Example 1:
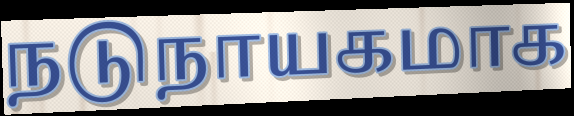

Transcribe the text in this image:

நடுநாயகமாக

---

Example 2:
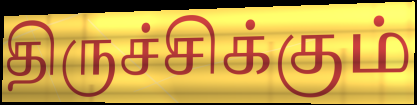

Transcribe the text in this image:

திருச்சிக்கும்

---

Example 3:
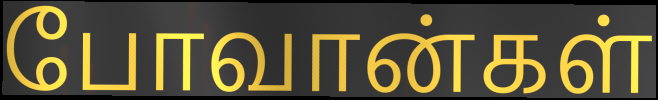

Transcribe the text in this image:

போவான்கள்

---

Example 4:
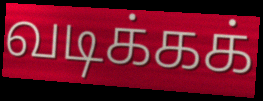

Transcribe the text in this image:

வடிக்கக்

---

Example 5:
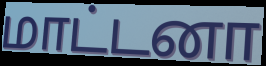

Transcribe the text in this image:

மாட்டனா